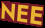
NEE